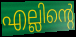
എല്ലിന്റെ